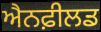
ਐਨਫ਼ੀਲਡ